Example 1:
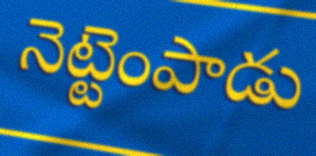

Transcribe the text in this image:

నెట్టెంపాడు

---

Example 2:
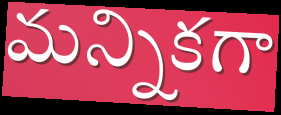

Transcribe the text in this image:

మన్నికగా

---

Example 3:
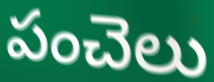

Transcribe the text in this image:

పంచెలు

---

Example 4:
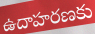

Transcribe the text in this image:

ఉదాహరణకు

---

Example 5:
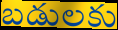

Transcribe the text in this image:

బడులకు